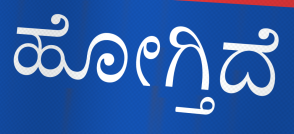
ಹೋಗ್ತಿದೆ